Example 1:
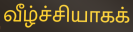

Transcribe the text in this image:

வீழ்ச்சியாகக்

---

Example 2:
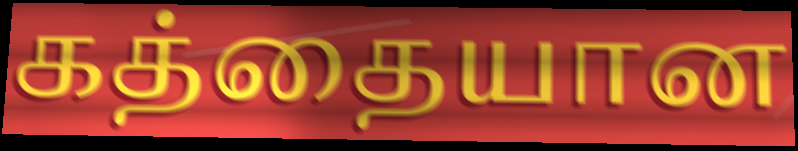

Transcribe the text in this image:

கத்தையான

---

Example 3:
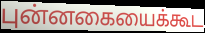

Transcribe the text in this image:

புன்னகையைக்கூட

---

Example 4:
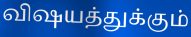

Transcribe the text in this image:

விஷயத்துக்கும்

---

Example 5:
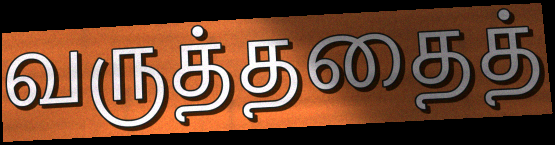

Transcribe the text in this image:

வருத்ததைத்